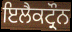
ਇਲੈਕਟ੍ਰੌਨ